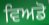
ਵਿਅਡੋ